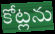
కోట్లను